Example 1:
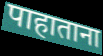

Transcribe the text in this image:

पाहाताना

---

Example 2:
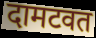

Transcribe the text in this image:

दामटवत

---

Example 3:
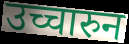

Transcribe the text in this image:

उच्चारुन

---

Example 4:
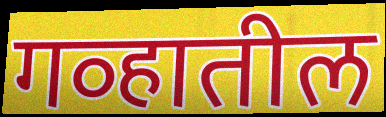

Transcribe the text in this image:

गव्हातील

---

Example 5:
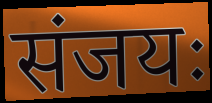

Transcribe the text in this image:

संजयः